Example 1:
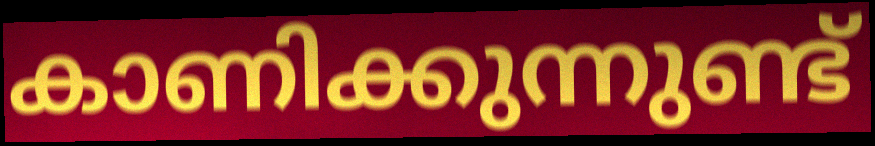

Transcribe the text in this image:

കാണിക്കുന്നുണ്ട്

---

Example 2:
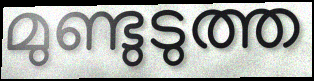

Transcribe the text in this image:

മുണ്ടുടുത്ത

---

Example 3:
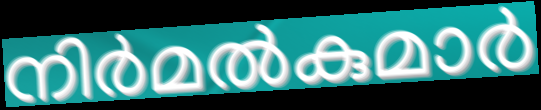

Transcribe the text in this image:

നിർമൽകുമാർ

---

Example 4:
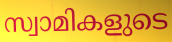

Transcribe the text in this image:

സ്വാമികളുടെ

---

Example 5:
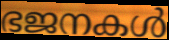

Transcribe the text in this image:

ഭജനകൾ